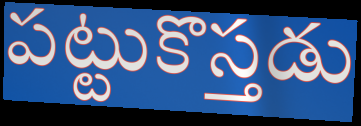
పట్టుకొస్తడు